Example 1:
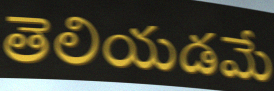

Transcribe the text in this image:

తెలియడమే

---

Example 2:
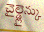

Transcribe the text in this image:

చైల్డ్లైన్కు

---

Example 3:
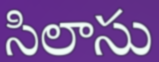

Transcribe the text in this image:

సిలాసు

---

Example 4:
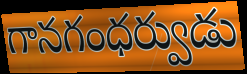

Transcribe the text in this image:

గానగంధర్వుడు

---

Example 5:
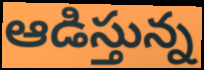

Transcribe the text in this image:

ఆడిస్తున్న